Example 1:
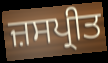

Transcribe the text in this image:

ਜ਼ਸਪ੍ਰੀਤ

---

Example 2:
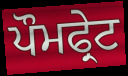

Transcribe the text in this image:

ਪੌਮਫ੍ਰੇਟ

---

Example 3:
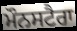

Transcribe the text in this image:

ਮੌਨਸਟੈਰਾ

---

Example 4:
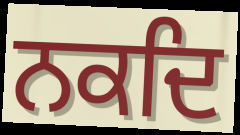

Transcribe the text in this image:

ਨਕਦਿ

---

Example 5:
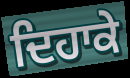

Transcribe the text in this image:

ਦਿਹਾਕੇ